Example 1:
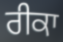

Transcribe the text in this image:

ਰੀਕਾ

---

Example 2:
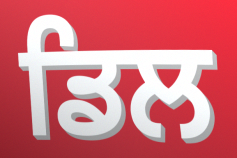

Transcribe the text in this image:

ਡਿਲ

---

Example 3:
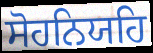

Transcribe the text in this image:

ਸੋਹਨਿਯਹਿ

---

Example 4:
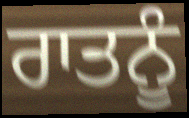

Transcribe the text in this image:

ਰਾਤਨੂੰ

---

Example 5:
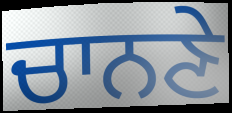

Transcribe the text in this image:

ਚਾਨਣੇ